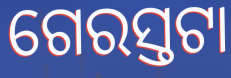
ଗେରସ୍ତଟା